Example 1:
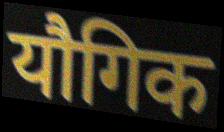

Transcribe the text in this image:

यौगिक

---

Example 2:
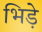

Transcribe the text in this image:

भिड़े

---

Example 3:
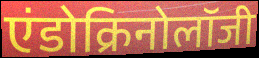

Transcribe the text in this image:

एंडोक्रिनोलॉजी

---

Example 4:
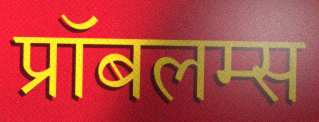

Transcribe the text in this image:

प्रॉबलम्स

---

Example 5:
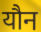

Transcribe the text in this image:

यौन